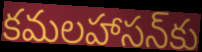
కమలహాసన్‌కు